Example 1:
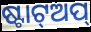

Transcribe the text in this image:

ଷ୍ଟାଟ୍ଅପ୍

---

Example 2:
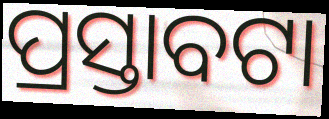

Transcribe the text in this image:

ପ୍ରସ୍ତାବଟା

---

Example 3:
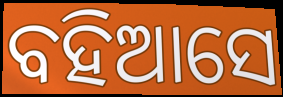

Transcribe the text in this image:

ବହିଆସେ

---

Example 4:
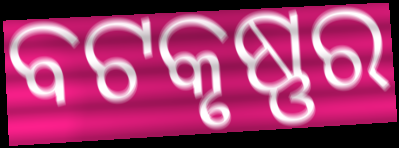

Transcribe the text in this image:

ବଟକୃଷ୍ଣର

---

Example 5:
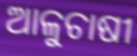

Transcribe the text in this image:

ଆଳୁଚାଷୀ